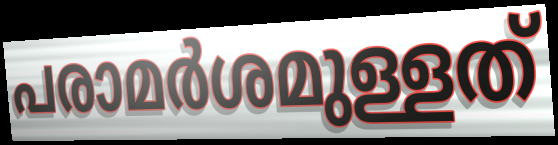
പരാമർശമുള്ളത്